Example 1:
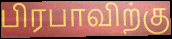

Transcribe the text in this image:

பிரபாவிற்கு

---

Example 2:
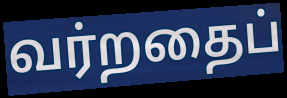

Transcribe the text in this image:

வர்றதைப்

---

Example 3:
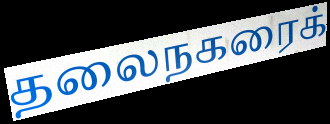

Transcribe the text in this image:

தலைநகரைக்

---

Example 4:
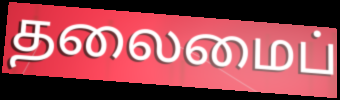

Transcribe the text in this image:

தலைமைப்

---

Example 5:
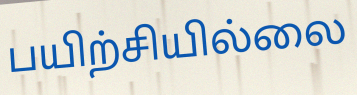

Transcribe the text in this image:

பயிற்சியில்லை